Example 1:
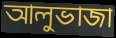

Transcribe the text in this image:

আলুভাজা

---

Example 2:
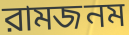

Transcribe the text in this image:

রামজনম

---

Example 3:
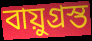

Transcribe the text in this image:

বায়ুগ্রস্ত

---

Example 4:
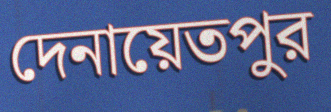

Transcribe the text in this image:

দেনায়েতপুর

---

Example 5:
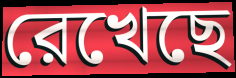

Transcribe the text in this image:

রেখেছে